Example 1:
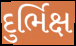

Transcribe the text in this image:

દુર્ભિક્ષ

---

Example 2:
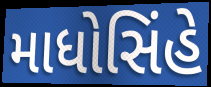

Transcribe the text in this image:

માધોસિંહે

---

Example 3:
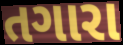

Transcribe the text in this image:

તગારા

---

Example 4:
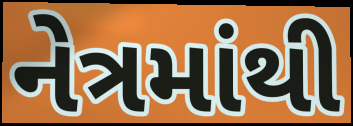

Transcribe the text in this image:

નેત્રમાંથી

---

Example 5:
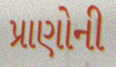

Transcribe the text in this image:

પ્રાણોની